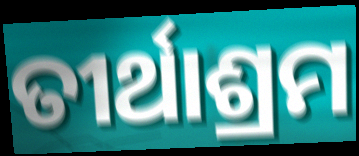
ତୀର୍ଥାଶ୍ରମ